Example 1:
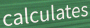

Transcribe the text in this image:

calculates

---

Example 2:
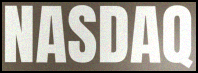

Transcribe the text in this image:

NASDAQ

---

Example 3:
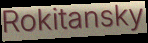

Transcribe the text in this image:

Rokitansky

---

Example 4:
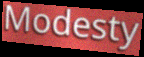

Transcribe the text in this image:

Modesty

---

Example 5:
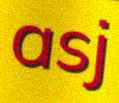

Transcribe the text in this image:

asj